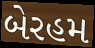
બેરહમ